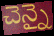
చెన్నై